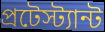
প্রটেস্ট্যান্ট